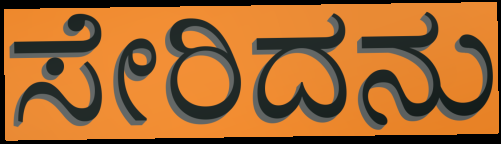
ಸೇರಿದನು